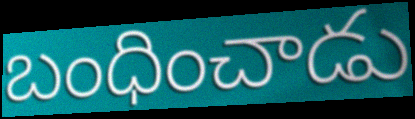
బంధించాడు